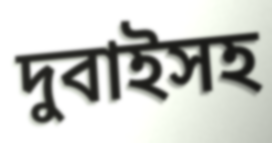
দুবাইসহ